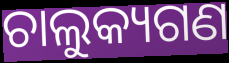
ଚାଲୁକ୍ୟଗଣ